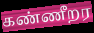
கண்ணீறர